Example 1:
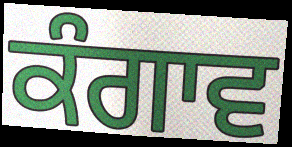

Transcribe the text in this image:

ਕੰਗਾਵ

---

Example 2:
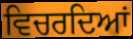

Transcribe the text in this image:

ਵਿਚਰਦਿਆਂ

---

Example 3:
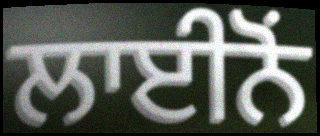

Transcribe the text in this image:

ਲਾਈਨੋਂ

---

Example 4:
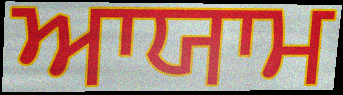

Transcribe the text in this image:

ਆਯਾਮ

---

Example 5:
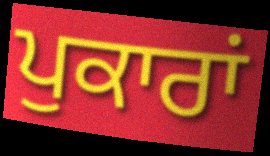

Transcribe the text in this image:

ਪੁਕਾਰਾਂ